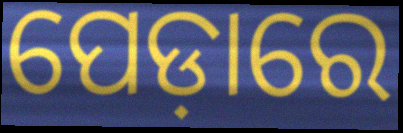
ପେଡ଼ାରେ